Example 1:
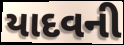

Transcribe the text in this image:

યાદવની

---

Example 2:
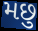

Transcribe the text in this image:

મછુ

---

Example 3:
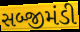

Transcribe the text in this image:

સબ્જીમંડી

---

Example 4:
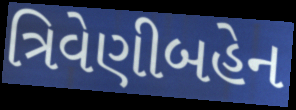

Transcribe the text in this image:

ત્રિવેણીબહેન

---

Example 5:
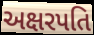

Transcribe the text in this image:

અક્ષરપતિ